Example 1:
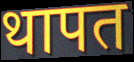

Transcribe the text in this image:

थापत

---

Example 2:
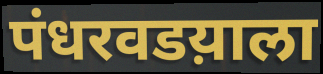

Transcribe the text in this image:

पंधरवडय़ाला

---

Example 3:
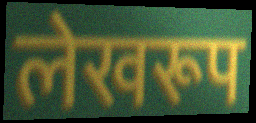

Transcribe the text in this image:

लेखरूप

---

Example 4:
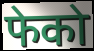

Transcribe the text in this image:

फेको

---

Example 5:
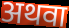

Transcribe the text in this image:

अथवा